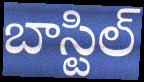
బాస్టిల్